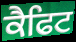
ਕੈਫਿਟ